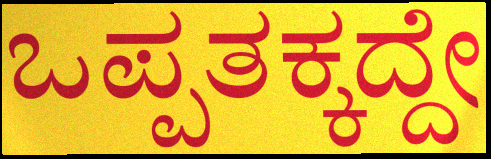
ಒಪ್ಪತಕ್ಕದ್ದೇ